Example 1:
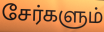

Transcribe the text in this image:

சேர்களும்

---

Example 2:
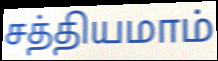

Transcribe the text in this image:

சத்தியமாம்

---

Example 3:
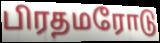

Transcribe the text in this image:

பிரதமரோடு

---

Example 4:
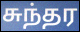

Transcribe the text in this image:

சுந்தர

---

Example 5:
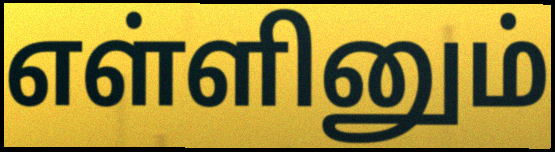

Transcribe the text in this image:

எள்ளினும்